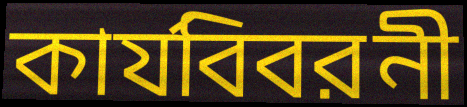
কার্যবিবরনী